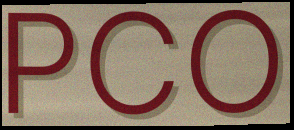
PCO